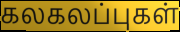
கலகலப்புகள்